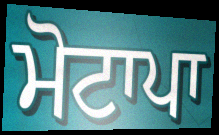
ਮੋਟਾਪਾ